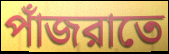
পাঁজরাতে